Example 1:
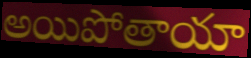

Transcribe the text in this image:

అయిపోతాయా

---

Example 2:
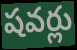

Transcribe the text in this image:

షవర్లు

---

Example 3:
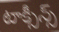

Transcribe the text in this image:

టాక్సీన్స్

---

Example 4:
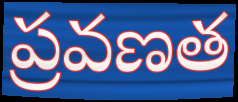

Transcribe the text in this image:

ప్రవణత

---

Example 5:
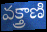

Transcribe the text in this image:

వక్త్రాణి